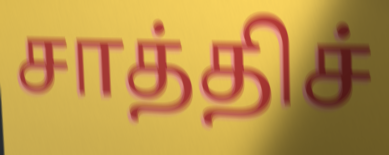
சாத்திச்